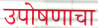
उपोषणाचा